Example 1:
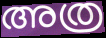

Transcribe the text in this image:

അത്ര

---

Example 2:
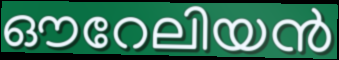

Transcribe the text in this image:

ഔറേലിയൻ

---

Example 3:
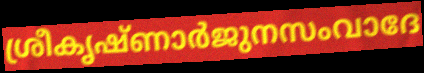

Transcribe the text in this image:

ശ്രീകൃഷ്ണാർജുനസംവാദേ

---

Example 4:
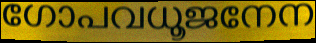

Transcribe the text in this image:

ഗോപവധൂജനേന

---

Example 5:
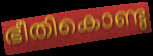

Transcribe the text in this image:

ഭീതികൊണ്ടു